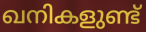
ഖനികളുണ്ട്